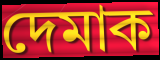
দেমাক